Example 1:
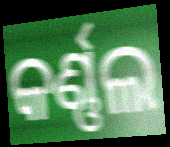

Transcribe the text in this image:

କର୍ଣ୍ଣଲ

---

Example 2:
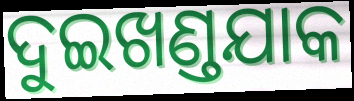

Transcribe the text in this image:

ଦୁଇଖଣ୍ଡଯାକ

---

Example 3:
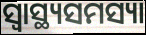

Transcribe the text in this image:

ସ୍ୱାସ୍ଥ୍ୟସମସ୍ୟା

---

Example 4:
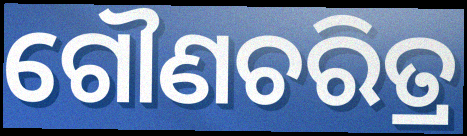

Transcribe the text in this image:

ଗୌଣଚରିତ୍ର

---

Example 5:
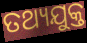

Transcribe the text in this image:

ତଥ୍ୟଯୁକ୍ତ